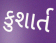
કુશાર્ત